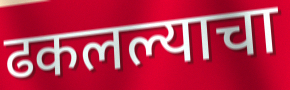
ढकलल्याचा